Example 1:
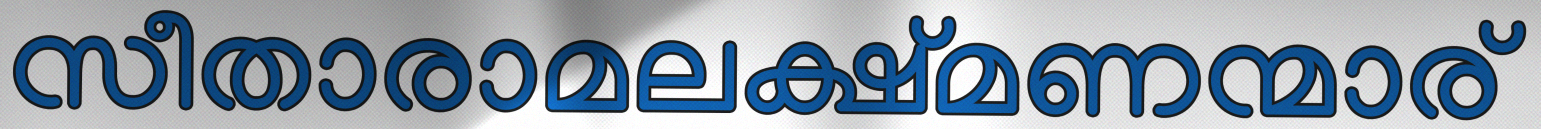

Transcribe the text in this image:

സീതാരാമലക്ഷ്മണന്മാര്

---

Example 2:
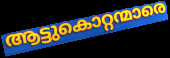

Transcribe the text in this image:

ആട്ടുകൊറ്റന്മാരെ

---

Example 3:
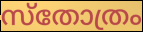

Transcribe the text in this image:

സ്തോത്രം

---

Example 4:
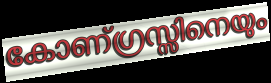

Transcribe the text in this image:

കോണ്ഗ്രസ്സിനെയും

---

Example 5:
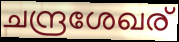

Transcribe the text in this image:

ചന്ദ്രശേഖര്